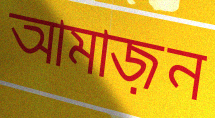
আমাজ়ন